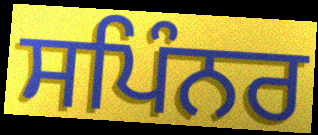
ਸਪਿੰਨਰ